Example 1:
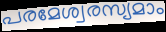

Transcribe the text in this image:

പരമേശ്വരസ്യമാം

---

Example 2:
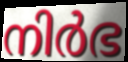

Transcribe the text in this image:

നിർഭ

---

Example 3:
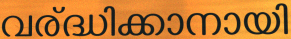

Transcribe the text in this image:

വര്ദ്ധിക്കാനായി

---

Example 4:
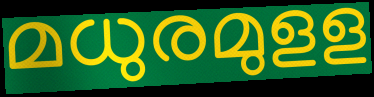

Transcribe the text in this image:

മധുരമുളള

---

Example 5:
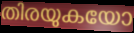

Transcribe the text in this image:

തിരയുകയോ